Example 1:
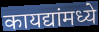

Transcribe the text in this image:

कायद्यांमध्ये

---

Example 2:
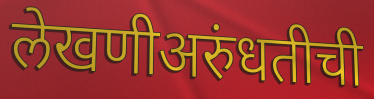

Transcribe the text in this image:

लेखणीअरुंधतीची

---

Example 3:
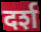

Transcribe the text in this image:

दर्श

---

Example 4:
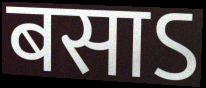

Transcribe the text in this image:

बसाऽ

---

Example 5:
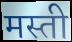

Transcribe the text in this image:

मस्ती